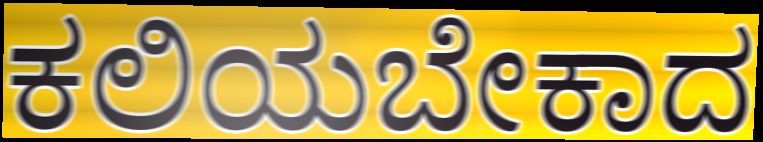
ಕಲಿಯಬೇಕಾದ